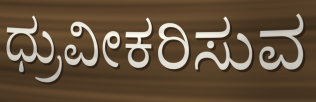
ಧ್ರುವೀಕರಿಸುವ